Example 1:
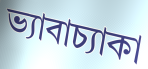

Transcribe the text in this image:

ভ্যাবাচ্যাকা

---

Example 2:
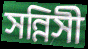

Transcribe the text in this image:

সন্নিসী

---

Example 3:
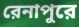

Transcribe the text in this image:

রেনাপুরে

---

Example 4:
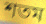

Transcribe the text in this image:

শতম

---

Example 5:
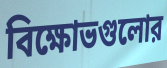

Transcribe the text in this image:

বিক্ষোভগুলোর